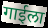
गाईला